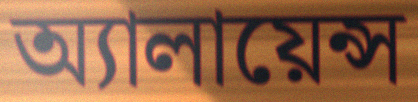
অ্যালায়েন্স